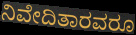
ನಿವೇದಿತಾರವರೂ